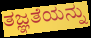
ತಜ್ಞತೆಯನ್ನು